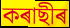
কৰাছীৰ